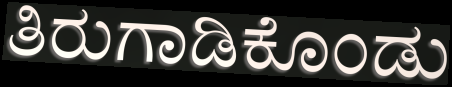
ತಿರುಗಾಡಿಕೊಂಡು